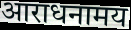
आराधनामय